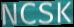
NCSK